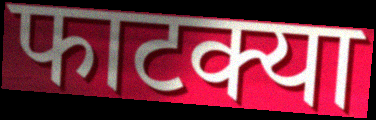
फाटक्या